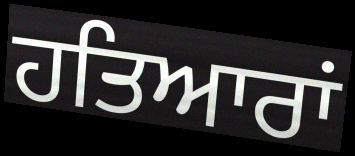
ਹਤਿਆਰਾਂ